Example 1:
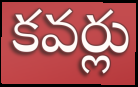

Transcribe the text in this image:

కవర్లు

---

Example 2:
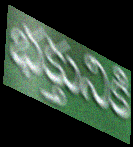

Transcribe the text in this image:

భక్తునికి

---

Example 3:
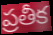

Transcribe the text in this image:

ప్రతీక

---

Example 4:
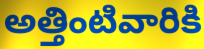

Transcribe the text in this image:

అత్తింటివారికి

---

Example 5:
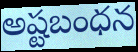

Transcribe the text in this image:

అష్టబంధన